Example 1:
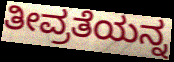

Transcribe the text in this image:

ತೀವ್ರತೆಯನ್ನ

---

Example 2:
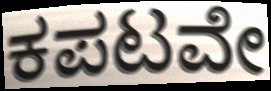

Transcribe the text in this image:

ಕಪಟವೇ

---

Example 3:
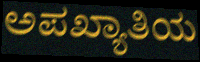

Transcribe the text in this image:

ಅಪಖ್ಯಾತಿಯ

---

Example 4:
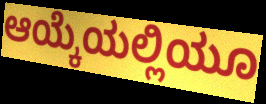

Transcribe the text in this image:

ಆಯ್ಕೆಯಲ್ಲಿಯೂ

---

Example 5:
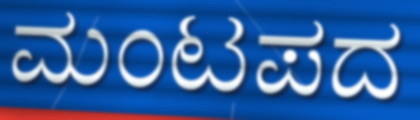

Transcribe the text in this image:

ಮಂಟಪದ